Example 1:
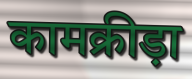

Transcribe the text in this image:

कामक्रीड़ा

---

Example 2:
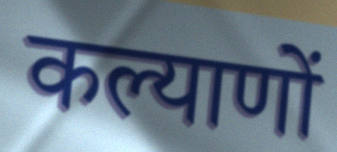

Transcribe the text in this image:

कल्याणों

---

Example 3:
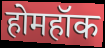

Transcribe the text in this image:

होमहॉक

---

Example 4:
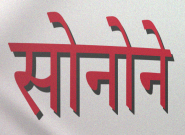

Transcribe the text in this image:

सोनोने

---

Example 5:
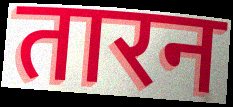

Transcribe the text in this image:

तारन